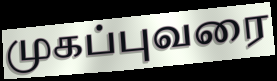
முகப்புவரை